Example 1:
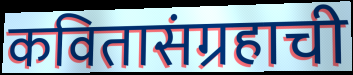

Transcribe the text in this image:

कवितासंग्रहाची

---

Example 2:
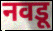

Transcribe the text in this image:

नवडू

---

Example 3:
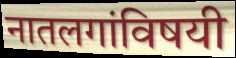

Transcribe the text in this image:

नातलगांविषयी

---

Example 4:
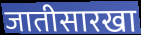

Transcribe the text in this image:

जातीसारखा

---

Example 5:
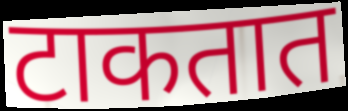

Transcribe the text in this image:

टाकतात